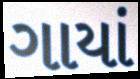
ગાયાં